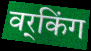
वर्किंग